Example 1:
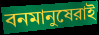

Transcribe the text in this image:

বনমানুষেরাই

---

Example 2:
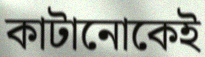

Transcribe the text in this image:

কাটানোকেই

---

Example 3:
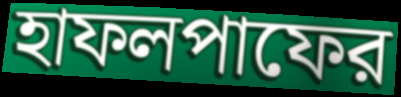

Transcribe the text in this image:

হাফলপাফের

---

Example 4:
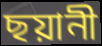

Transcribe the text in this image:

ছয়ানী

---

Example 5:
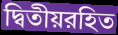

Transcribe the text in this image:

দ্বিতীয়রহিত